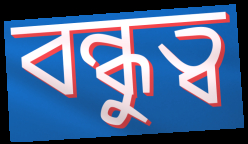
বন্ধুত্ব